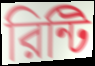
রিন্টি